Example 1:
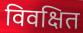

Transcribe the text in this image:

विवक्षित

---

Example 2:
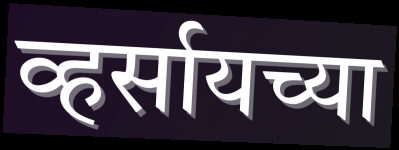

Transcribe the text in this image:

व्हर्सायच्या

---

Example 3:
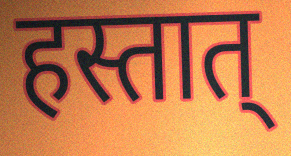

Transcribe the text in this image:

हस्तात्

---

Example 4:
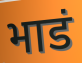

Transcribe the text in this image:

भाडं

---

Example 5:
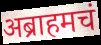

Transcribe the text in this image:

अब्राहमचं